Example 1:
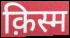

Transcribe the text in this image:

क़िस्म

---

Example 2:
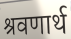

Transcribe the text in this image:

श्रवणार्थ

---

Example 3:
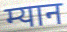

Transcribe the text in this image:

म्यान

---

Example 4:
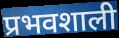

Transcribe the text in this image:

प्रभवशाली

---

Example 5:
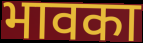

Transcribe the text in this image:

भावका